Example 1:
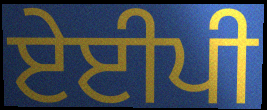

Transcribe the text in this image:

ਏਈਪੀ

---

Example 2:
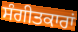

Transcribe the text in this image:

ਸੰਗੀਤਕਾਰਾਂ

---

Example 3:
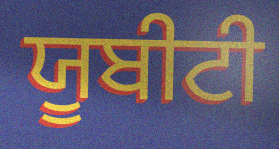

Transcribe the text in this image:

ਯੂਬੀਟੀ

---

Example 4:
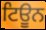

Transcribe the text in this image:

ਟਿਊਨ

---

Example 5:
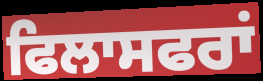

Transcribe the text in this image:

ਫਿਲਾਸਫਰਾਂ